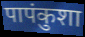
पापंकुशा